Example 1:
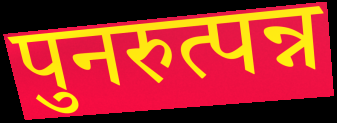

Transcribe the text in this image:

पुनरुत्पन्न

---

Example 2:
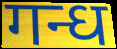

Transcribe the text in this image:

गन्‍ध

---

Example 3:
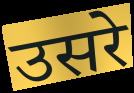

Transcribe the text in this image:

उसरे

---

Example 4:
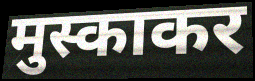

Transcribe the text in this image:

मुस्काकर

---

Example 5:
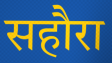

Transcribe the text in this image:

सहौरा